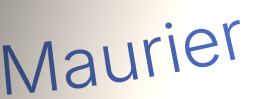
Maurier